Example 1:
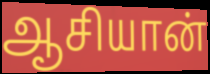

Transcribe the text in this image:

ஆசியான்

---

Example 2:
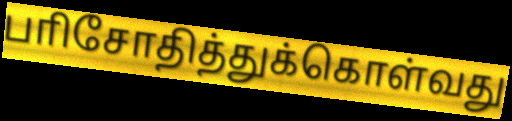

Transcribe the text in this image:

பரிசோதித்துக்கொள்வது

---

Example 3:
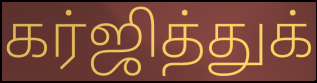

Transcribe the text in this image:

கர்ஜித்துக்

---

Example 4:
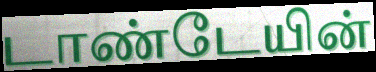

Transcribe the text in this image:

டாண்டேயின்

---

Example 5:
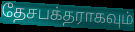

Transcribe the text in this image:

தேசபக்தராகவும்